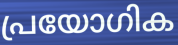
പ്രയോഗിക